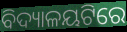
ବିଦ୍ୟାଳୟଟିରେ